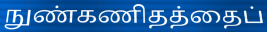
நுண்கணிதத்தைப்